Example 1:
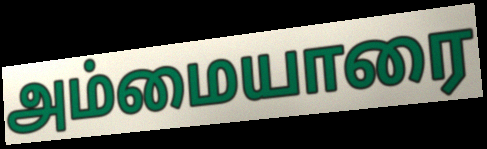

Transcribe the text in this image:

அம்மையாரை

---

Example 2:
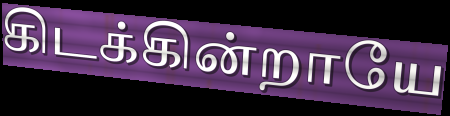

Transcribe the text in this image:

கிடக்கின்றாயே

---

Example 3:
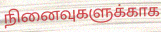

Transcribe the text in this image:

நினைவுகளுக்காக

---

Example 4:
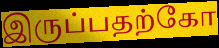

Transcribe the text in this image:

இருப்பதற்கோ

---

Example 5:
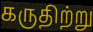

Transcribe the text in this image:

கருதிற்று